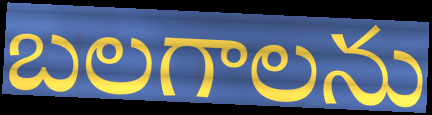
బలగాలను